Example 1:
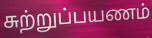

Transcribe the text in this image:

சுற்றுப்பயணம்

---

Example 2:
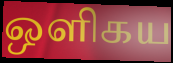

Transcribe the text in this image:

ஒளிகய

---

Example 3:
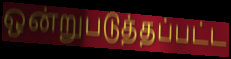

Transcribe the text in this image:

ஒன்றுபடுத்தப்பட்ட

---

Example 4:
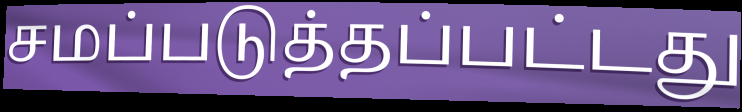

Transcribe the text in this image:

சமப்படுத்தப்பட்டது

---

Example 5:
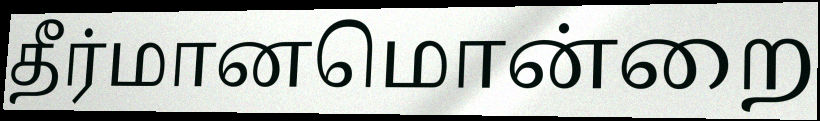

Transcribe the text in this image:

தீர்மானமொன்றை